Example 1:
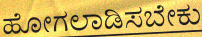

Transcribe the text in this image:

ಹೋಗಲಾಡಿಸಬೇಕು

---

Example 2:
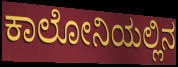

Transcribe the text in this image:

ಕಾಲೋನಿಯಲ್ಲಿನ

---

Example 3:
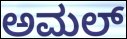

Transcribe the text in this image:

ಅಮಲ್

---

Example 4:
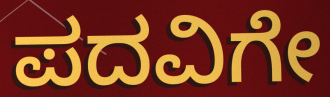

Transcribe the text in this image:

ಪದವಿಗೇ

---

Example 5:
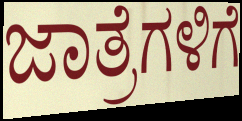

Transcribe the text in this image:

ಜಾತ್ರೆಗಳಿಗೆ